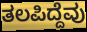
ತಲಪಿದ್ದೆವು